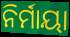
ନିର୍ମାୟା